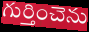
గుర్తించెను